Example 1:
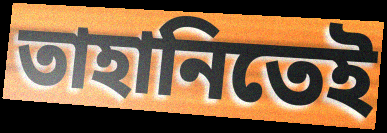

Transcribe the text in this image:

তাহানিতেই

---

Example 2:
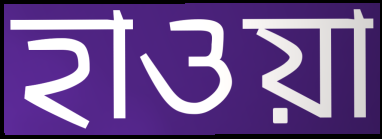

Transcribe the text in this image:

হাওয়া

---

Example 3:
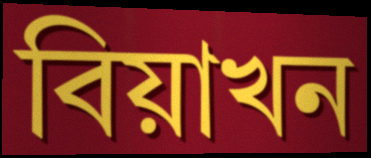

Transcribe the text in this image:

বিয়াখন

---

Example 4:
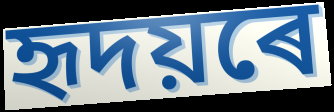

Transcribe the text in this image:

হৃদয়ৰে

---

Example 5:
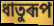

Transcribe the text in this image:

ধাতুৰূপ